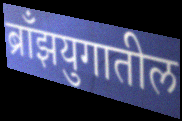
ब्राँझयुगातील